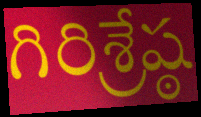
గిరిశ్రేష్ఠ